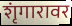
शृंगारावर